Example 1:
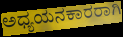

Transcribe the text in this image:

ಅಧ್ಯಯನಕಾರರಾಗಿ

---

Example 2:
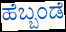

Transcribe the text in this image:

ಹೆಬ್ಬಂಡೆ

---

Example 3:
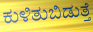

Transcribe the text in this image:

ಕುಳಿತುಬಿಡುತ್ತೆ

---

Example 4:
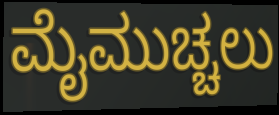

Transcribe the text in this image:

ಮೈಮುಚ್ಚಲು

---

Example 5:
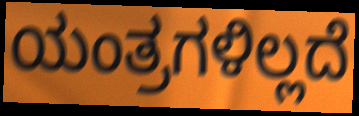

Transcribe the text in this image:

ಯಂತ್ರಗಳಿಲ್ಲದೆ